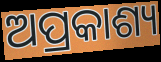
ଅପ୍ରକାଶ୍ୟ